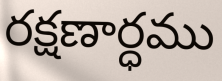
రక్షణార్ధము